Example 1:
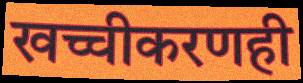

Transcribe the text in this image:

खच्चीकरणही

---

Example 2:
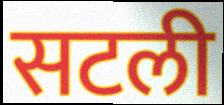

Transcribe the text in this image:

सटली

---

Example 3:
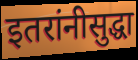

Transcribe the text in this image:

इतरांनीसुद्धा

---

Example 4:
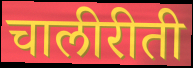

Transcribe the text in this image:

चालीरीती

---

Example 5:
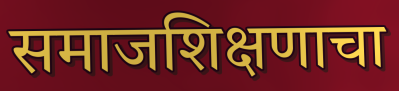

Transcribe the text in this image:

समाजशिक्षणाचा